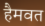
हैमवत